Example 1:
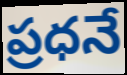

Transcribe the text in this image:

ప్రధనే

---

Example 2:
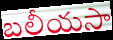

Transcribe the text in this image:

బలీయసా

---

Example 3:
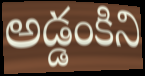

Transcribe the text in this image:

అడ్డంకిని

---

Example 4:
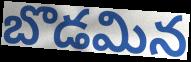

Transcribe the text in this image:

బొడమిన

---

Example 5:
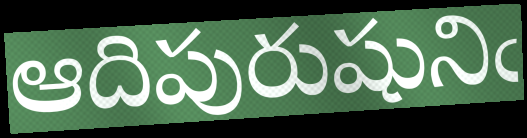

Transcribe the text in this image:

ఆదిపురుషునిఁ